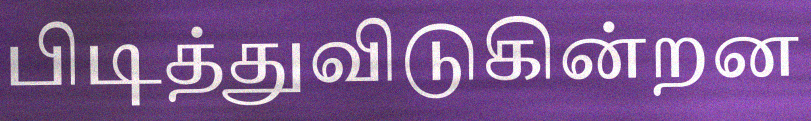
பிடித்துவிடுகின்றன